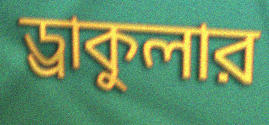
ড্রাকুলার